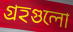
গ্রহগুলো